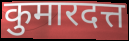
कुमारदत्त